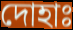
দোহাঃ